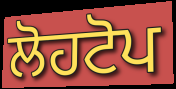
ਲੋਹਟੋਪ